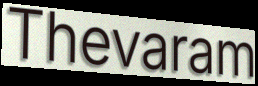
Thevaram